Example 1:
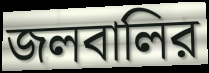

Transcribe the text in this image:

জলবালির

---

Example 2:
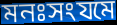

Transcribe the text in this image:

মনঃসংযমে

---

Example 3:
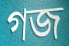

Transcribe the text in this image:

গজ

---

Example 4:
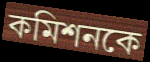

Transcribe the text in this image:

কমিশনকে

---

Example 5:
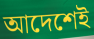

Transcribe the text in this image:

আদেশেই